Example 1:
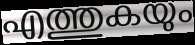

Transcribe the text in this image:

എത്തുകയും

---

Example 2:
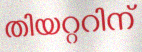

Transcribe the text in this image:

തിയറ്ററിന്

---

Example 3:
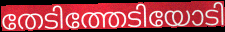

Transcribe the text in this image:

തേടിത്തേടിയോടി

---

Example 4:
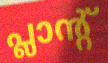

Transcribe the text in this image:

പ്ലാന്റ്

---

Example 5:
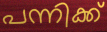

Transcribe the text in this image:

പന്നിക്ക്